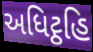
અધિટ્ઠહિ